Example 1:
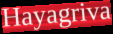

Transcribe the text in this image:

Hayagriva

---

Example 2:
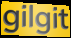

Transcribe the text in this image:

gilgit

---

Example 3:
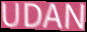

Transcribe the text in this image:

UDAN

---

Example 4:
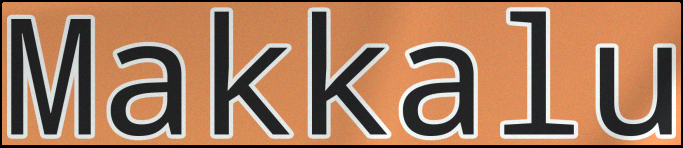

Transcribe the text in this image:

Makkalu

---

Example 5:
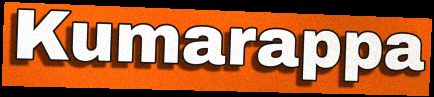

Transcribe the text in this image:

Kumarappa